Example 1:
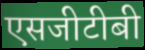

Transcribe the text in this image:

एसजीटीबी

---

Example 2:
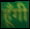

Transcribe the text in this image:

हूँगी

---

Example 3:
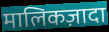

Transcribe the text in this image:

मालिकज़ादा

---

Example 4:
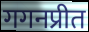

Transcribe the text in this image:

गगनप्रीत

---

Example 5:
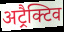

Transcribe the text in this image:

अट्रैक्टिव